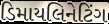
ડિમાયલિનેટિંગ